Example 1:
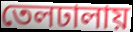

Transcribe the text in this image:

তেলঢালায়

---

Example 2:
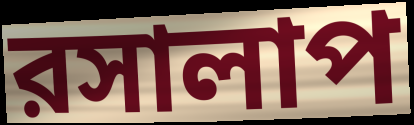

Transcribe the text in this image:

রসালাপ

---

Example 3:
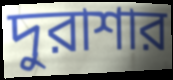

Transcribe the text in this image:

দুরাশার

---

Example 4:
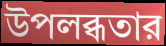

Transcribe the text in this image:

উপলব্ধতার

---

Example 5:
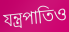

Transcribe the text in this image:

যন্ত্রপাতিও